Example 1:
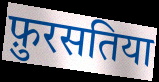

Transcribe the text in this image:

फ़ुरसतिया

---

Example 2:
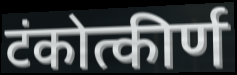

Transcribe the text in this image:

टंकोत्कीर्ण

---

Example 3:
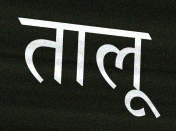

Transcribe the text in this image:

तालू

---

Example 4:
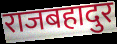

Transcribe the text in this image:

राजबहादुर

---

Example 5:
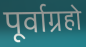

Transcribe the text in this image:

पूर्वाग्रहो